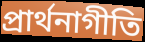
প্রার্থনাগীতি